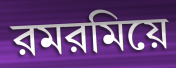
রমরমিয়ে